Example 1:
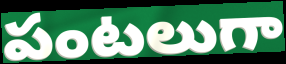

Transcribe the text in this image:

పంటలుగా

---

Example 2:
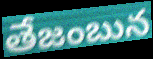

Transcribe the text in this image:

తేజంబున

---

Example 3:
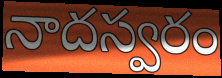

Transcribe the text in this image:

నాదస్వరం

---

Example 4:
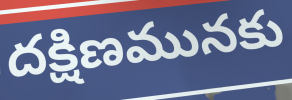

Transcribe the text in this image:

దక్షిణమునకు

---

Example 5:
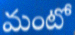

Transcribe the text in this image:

మంటో